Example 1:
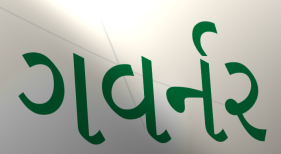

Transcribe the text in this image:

ગવર્નર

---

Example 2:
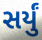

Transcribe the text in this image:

સર્યું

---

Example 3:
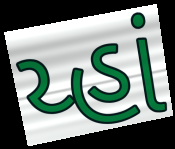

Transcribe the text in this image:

ય્હાં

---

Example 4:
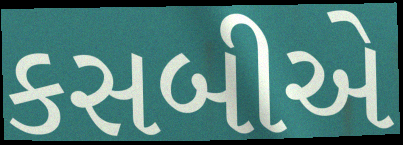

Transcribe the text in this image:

કસબીએ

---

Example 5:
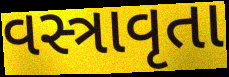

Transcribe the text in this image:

વસ્ત્રાવૃતા